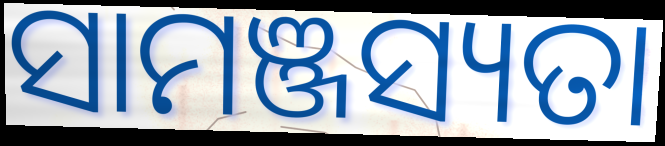
ସାମଞ୍ଜସ୍ୟତା